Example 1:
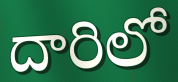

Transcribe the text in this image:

దారిలో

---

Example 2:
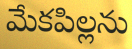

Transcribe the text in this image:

మేకపిల్లను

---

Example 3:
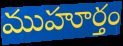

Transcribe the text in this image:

ముహూర్తం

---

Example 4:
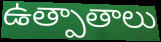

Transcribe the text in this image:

ఉత్పాతాలు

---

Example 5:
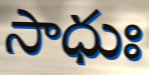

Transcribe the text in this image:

సాధుః